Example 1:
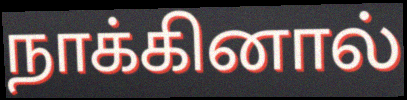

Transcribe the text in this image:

நாக்கினால்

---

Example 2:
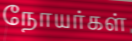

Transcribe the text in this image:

நோயர்கள்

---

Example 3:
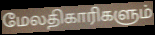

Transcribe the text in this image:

மேலதிகாரிகளும்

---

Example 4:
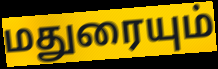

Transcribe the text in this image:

மதுரையும்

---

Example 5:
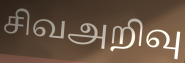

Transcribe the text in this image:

சிவஅறிவு